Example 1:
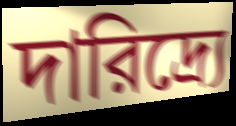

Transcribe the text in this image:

দারিদ্র্যে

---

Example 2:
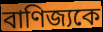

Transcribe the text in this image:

বাণিজ্যকে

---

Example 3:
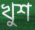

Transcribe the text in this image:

খুশ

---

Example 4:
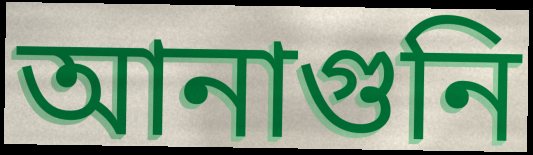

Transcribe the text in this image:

আনাগুনি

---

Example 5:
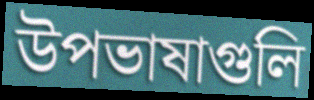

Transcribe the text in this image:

উপভাষাগুলি